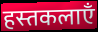
हस्तकलाएँ